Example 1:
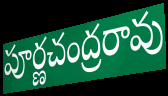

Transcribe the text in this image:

పూర్ణచంద్రరావు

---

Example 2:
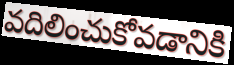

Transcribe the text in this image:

వదిలించుకోవడానికి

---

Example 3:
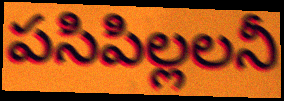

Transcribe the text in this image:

పసిపిల్లలనీ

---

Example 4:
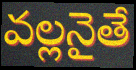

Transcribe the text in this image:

వల్లనైతే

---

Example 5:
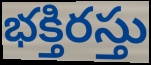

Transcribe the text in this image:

భక్తిరస్తు